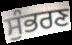
ਸੁੰਭਰਣ